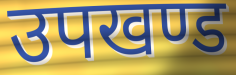
उपखण्ड